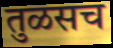
तुळसच